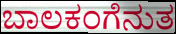
ಬಾಲಕಂಗೆನುತ